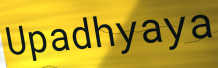
Upadhyaya